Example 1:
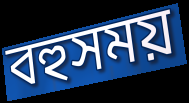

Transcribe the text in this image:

বহুসময়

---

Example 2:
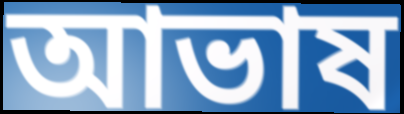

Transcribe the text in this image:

আভাষ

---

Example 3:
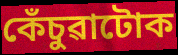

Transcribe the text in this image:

কেঁচুৱাটোক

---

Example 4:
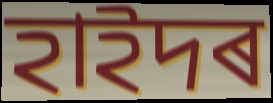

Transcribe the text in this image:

হাইদৰ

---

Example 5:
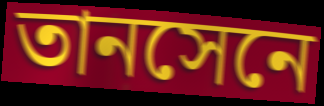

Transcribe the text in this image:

তানসেনে